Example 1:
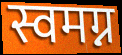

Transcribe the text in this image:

स्वमग्न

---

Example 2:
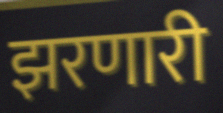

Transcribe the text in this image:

झरणारी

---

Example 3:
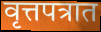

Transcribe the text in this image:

वृत्तपत्रात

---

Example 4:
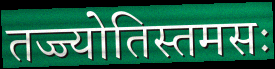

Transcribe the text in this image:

तज्ज्योतिस्तमसः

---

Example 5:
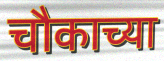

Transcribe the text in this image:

चौकाच्या